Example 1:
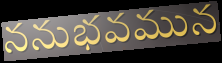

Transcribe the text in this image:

ననుభవమున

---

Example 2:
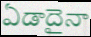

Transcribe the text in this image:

ఏడాదైనా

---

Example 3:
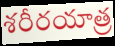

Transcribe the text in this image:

శరీరయాత్ర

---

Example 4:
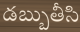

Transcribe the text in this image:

డబ్బుతీసి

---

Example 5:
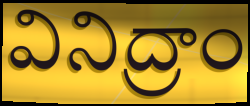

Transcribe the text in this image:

వినిద్రాం